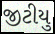
જીટીયુ